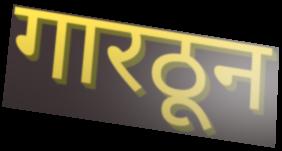
गारठून